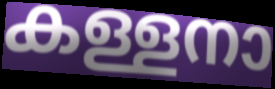
കള്ളനാ